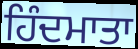
ਹਿੰਦਮਾਤਾ